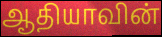
ஆதியாவின்